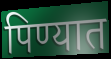
पिण्यात